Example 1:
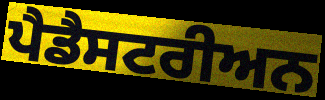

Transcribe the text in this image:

ਪੈਡੈਸਟਰੀਅਨ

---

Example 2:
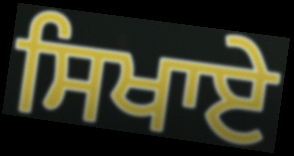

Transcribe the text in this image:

ਸਿਖਾਏ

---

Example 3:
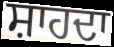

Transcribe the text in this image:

ਸ਼ਾਹਦਾ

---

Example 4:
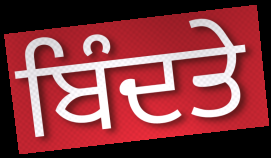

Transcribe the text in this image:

ਬਿੰਦਤੇ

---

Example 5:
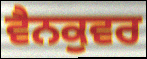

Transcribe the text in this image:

ਵੈਨਕੁਵਰ